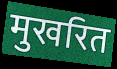
मुखरित